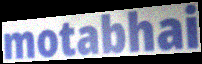
motabhai